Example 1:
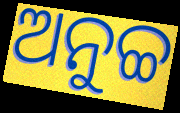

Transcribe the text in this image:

ଅନୁଚ୍ଚ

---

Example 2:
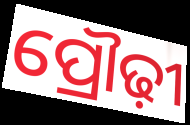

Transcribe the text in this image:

ପ୍ରୌଢ଼ୀ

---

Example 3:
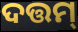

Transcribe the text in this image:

ଦତ୍ତମ୍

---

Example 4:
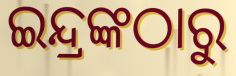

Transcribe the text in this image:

ଇନ୍ଦ୍ରଙ୍କଠାରୁ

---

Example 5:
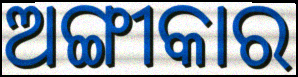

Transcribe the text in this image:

ଅଙ୍ଗୀକାର